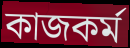
কাজকর্ম